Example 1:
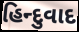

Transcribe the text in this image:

હિન્દુવાદ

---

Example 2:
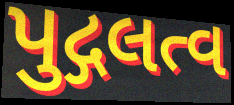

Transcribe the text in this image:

પુદ્ગલત્વ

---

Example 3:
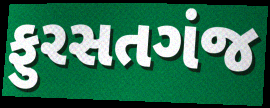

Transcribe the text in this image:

ફુરસતગંજ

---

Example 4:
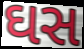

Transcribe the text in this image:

ઘસ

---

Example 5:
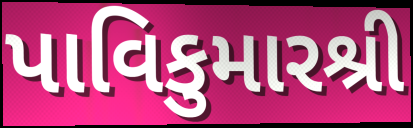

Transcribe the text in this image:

પાવિકુમારશ્રી